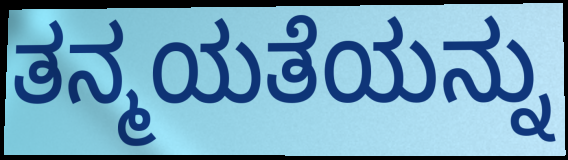
ತನ್ಮಯತೆಯನ್ನು